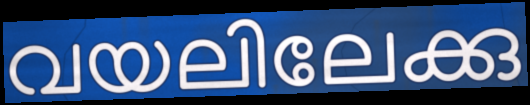
വയലിലേക്കു